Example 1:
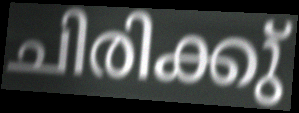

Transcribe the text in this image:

ചിരിക്കു്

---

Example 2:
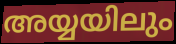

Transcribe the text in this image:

അയ്യയിലും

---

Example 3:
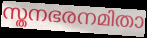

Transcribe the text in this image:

സ്തനഭരനമിതാ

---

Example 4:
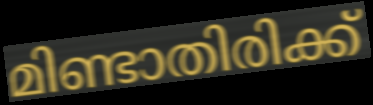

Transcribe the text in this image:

മിണ്ടാതിരിക്ക്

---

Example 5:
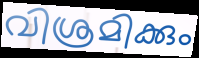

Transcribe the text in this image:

വിശ്രമിക്കും